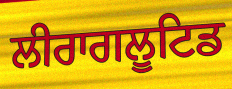
ਲੀਰਾਗਲੂਟਿਡ